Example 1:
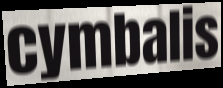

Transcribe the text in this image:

cymbalis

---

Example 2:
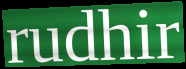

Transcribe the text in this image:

rudhir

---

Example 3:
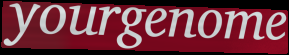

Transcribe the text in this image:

yourgenome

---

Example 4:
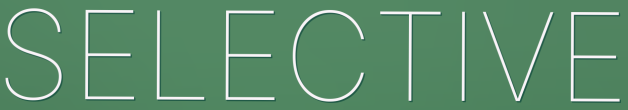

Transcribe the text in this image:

SELECTIVE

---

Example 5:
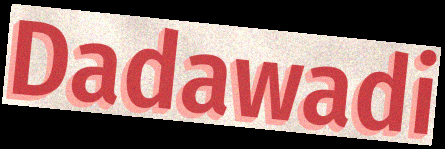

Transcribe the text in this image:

Dadawadi